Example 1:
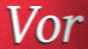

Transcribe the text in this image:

Vor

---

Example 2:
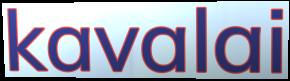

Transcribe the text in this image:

kavalai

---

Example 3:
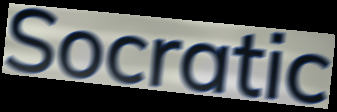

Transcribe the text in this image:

Socratic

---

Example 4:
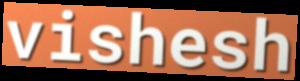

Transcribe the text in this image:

vishesh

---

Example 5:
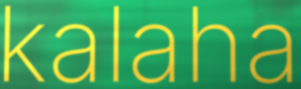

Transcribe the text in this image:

kalaha